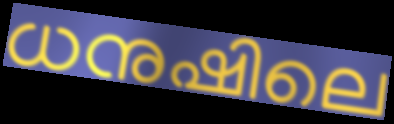
ധനുഷിലെ